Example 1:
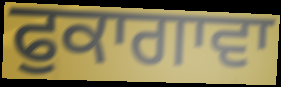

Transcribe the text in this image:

ਫੁਕਾਗਾਵਾ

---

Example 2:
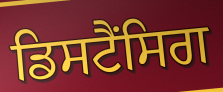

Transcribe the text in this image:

ਡਿਸਟੈਂਸਿਗ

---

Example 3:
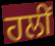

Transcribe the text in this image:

ਹਲੀਂ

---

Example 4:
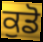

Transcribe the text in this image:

ਕੁਡੋ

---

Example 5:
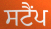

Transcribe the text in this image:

ਸਟੈਂਪ